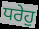
ਧਰੇਹੁ